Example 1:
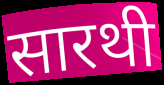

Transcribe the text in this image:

सारथी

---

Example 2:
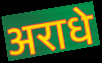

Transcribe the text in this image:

अराधे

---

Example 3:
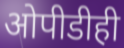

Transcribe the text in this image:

ओपीडीही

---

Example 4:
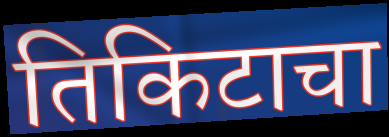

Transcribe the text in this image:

तिकिटाचा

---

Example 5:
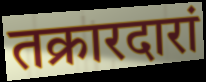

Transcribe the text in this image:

तक्रारदारां